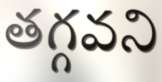
తగ్గవని